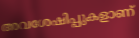
അവശേഷിപ്പുകളാണ്